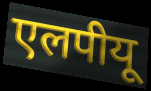
एलपीयू